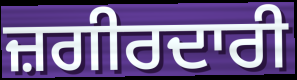
ਜ਼ਗੀਰਦਾਰੀ